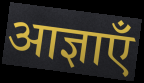
आज्ञाएँ